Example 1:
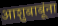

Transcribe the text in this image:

आशुबाबूंना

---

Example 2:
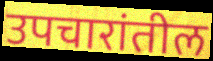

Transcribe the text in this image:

उपचारांतील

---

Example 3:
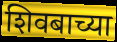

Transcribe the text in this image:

शिवबाच्या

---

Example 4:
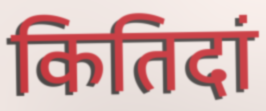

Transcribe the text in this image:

कितिदां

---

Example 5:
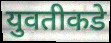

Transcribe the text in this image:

युवतीकडे